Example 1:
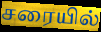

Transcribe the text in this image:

சரையில்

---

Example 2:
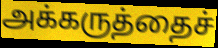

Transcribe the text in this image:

அக்கருத்தைச்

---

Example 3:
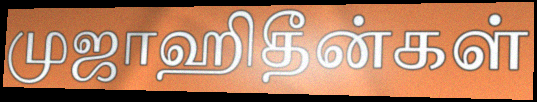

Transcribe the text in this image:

முஜாஹிதீன்கள்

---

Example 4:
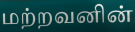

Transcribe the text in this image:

மற்றவனின்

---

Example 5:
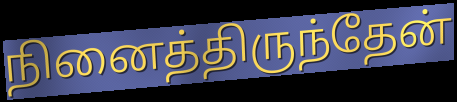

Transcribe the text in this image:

நினைத்திருந்தேன்